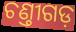
ଚଣ୍ତୀଗଡ଼